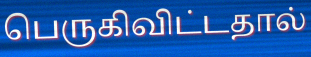
பெருகிவிட்டதால்